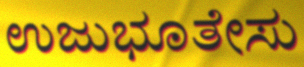
ಉಜುಭೂತೇಸು